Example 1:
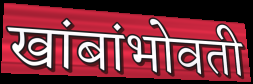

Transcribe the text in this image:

खांबांभोवती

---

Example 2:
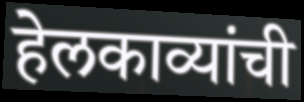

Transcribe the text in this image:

हेलकाव्यांची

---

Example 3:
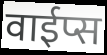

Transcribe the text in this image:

वाईप्स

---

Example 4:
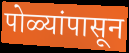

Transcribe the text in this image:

पोळ्यांपासून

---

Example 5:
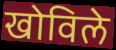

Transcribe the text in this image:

खोविले